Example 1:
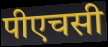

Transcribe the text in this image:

पीएचसी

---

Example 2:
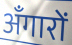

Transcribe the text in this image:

अँगारों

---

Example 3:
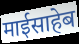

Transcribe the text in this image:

माईसाहेब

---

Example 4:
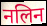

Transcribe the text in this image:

नलिन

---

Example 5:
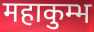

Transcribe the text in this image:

महाकुम्भ